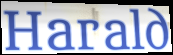
Harald